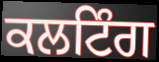
ਕਲਟਿੰਗ